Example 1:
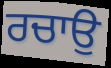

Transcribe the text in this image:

ਰਚਾਉ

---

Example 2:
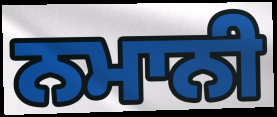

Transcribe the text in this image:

ਨਮਾਨੀ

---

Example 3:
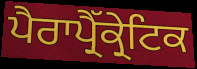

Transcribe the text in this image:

ਪੈਰਾਪ੍ਰੈੱਕ੍ਰੇਟਿਕ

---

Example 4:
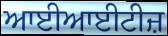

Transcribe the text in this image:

ਆਈਆਈਟੀਜ਼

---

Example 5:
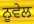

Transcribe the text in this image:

ਨੂਵੇਲ